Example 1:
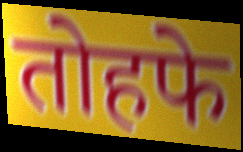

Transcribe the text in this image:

तोहफे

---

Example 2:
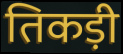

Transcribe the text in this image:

तिकड़ी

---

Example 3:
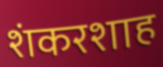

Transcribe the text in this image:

शंकरशाह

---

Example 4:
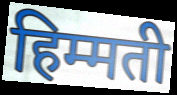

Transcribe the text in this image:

हिम्मती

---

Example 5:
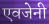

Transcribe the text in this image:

एवजेनी